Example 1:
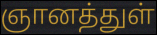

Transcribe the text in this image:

ஞானத்துள்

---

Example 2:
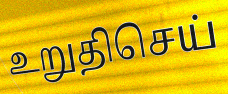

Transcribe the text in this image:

உறுதிசெய்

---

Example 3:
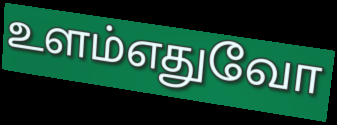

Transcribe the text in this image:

உளம்எதுவோ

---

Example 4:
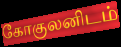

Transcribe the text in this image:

கோகுலனிடம்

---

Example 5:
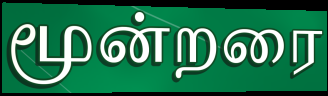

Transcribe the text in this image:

மூன்றரை